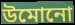
উমোনো